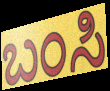
ಬಂಸಿ